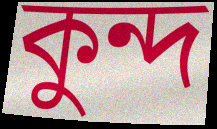
কুন্দ